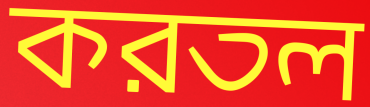
করতল